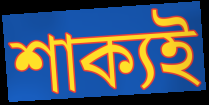
শাক্যই